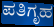
ಪತಿಗೃಹ